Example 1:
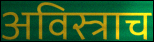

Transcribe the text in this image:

अविस्त्राच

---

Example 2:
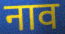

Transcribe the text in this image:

नाव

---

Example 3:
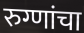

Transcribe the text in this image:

रुग्णांचा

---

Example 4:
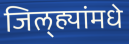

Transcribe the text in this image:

जिल्ह्यांमधे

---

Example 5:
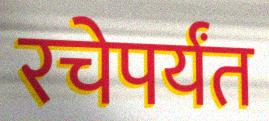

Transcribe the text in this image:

रचेपर्यंत